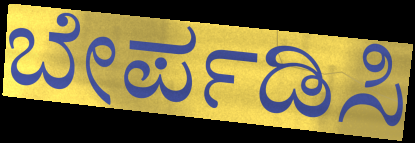
ಬೇರ್ಪಡಿಸಿ